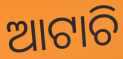
ଆଟାଚି